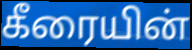
கீரையின்